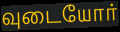
வுடையோர்